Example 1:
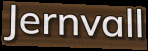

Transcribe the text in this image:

Jernvall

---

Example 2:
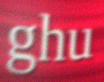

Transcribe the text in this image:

ghu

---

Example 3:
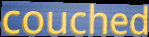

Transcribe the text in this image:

couched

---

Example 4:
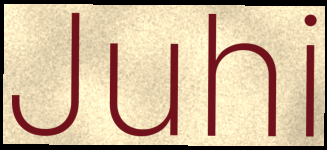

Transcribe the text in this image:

Juhi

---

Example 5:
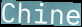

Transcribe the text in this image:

Chine